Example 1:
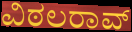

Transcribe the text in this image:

ವಿಠಲರಾವ್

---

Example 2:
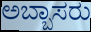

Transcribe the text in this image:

ಅಬ್ಬಾಸರು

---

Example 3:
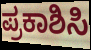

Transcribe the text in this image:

ಪ್ರಕಾಶಿಸಿ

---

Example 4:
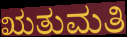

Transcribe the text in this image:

ಋತುಮತಿ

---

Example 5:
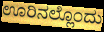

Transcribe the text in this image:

ಊರಿನಲ್ಲೊಂದು